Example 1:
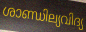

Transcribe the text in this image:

ശാണ്ഡില്യവിദ്യ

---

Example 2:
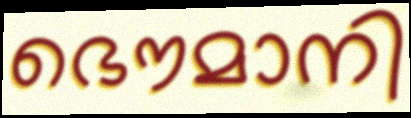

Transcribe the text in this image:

ഭൌമാനി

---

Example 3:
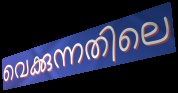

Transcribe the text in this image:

വെക്കുന്നതിലെ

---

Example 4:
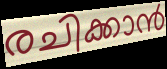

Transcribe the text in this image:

രചിക്കാൻ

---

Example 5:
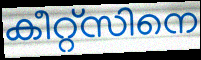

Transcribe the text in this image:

കീറ്റ്സിനെ